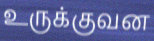
உருக்குவன